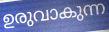
ഉരുവാകുന്ന